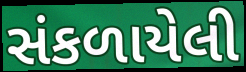
સંકળાયેલી